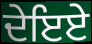
ਦੇਇਏ